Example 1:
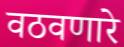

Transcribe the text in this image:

वठवणारे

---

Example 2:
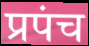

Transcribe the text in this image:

प्रपंच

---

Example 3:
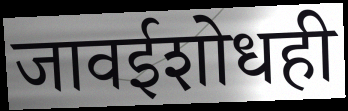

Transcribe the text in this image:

जावईशोधही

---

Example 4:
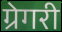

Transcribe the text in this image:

ग्रेगरी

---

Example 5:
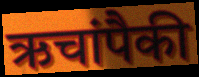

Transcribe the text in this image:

ऋचांपैकी